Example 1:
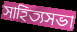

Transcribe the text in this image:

সাহিত্যসভা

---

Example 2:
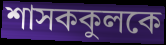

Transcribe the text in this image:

শাসককুলকে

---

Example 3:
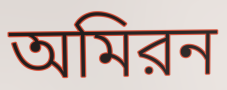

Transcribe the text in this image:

অমিরন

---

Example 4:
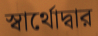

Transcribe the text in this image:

স্বার্থোদ্বার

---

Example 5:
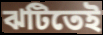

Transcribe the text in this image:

ঝটিতেই